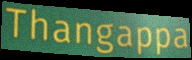
Thangappa